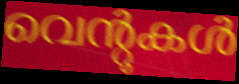
വെന്റുകൾ